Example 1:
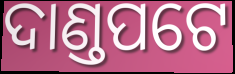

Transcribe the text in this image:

ଦାଣ୍ଡପଟେ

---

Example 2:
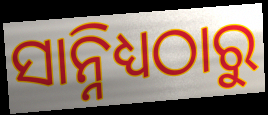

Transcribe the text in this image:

ସାନ୍ନିଧ୍ୟଠାରୁ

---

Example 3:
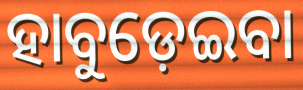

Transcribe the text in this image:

ହାବୁଡ଼େଇବା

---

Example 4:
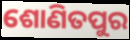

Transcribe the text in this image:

ଶୋଣିତପୁର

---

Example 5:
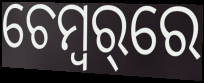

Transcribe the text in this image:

ଚେମ୍ବର୍‌ରେ